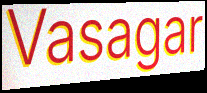
Vasagar